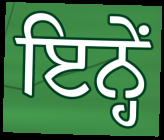
ਇਨ੍ਹੇਂ